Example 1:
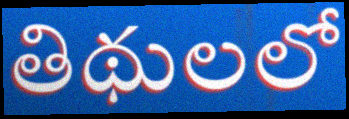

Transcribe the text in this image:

తిథులలో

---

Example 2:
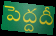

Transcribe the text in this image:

పెద్దదీ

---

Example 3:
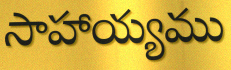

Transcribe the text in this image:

సాహాయ్యము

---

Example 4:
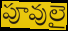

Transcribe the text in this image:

పూవులై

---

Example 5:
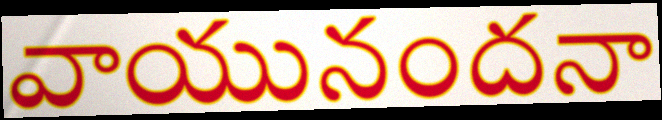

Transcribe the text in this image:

వాయునందనా